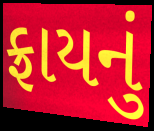
ફ્રાયનું